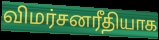
விமர்சனரீதியாக